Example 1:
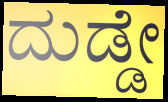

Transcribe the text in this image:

ದುಡ್ಡೇ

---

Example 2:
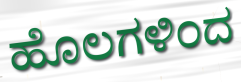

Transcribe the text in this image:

ಹೊಲಗಳಿಂದ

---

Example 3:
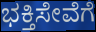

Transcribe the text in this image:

ಭಕ್ತಿಸೇವೆಗೆ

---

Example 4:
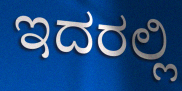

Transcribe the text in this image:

ಇದರಲ್ಲಿ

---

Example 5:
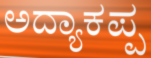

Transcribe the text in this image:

ಅದ್ಯಾಕಪ್ಪ